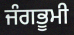
ਜੰਗਭੂਮੀ